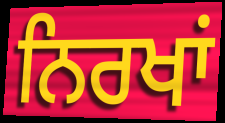
ਨਿਰਖਾਂ